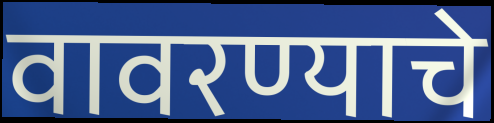
वावरण्याचे